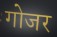
गोजर